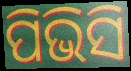
ପିଭିସି